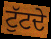
ਟੁੱਟਦੇ